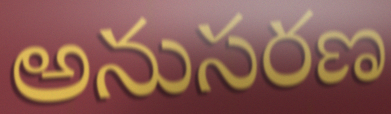
అనుసరణ